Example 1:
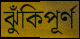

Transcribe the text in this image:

ঝুঁকিপূর্ণ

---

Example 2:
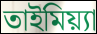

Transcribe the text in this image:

তাইমিয়্যা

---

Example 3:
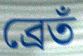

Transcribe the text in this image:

ব্রেতঁ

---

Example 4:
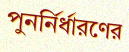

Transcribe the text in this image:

পুনর্নির্ধারণের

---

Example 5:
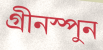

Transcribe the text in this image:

গ্রীনস্পুন